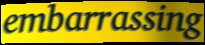
embarrassing